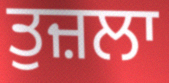
ਤੁਜ਼ਲਾ